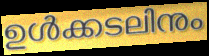
ഉൾക്കടലിനും